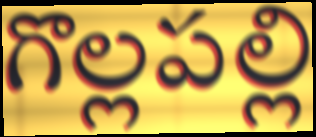
గొల్లపల్లి